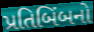
પ્રતિબિંબનો